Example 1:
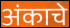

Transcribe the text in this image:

अंकाचे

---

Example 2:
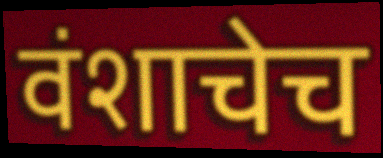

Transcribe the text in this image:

वंशाचेच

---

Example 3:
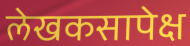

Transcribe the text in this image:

लेखकसापेक्ष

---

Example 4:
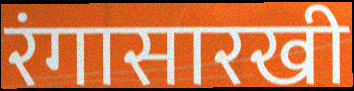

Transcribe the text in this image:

रंगासारखी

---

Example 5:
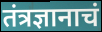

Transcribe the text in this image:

तंत्रज्ञानाचं